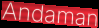
Andaman